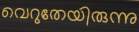
വെറുതേയിരുന്നു